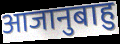
आजानुबाहु